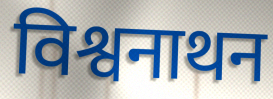
विश्वनाथन